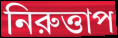
নিরুত্তাপ